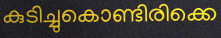
കുടിച്ചുകൊണ്ടിരിക്കെ